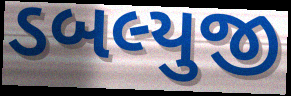
ડબલ્યુજી